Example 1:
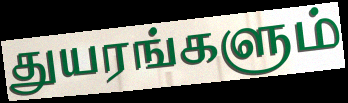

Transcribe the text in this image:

துயரங்களும்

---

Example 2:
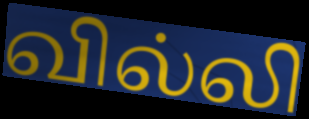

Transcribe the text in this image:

வில்லி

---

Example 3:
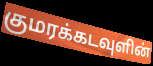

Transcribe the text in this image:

குமரக்கடவுளின்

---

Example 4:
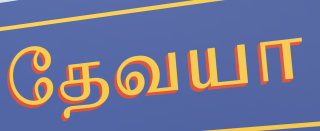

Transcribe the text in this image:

தேவயா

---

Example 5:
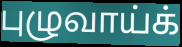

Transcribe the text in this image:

புழுவாய்க்